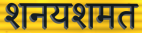
शनयशमत